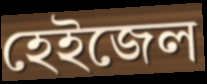
হেইজেল